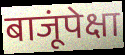
बाजूंपेक्षा